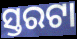
ସ୍ତରଟା